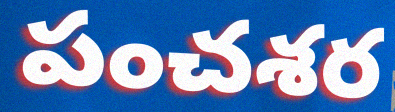
పంచశర